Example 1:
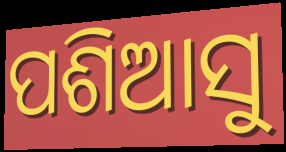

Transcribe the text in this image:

ପଶିଆସୁ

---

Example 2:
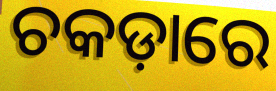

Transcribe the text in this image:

ଚକଡ଼ାରେ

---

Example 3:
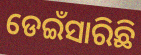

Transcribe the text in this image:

ଡେଇଁସାରିଛି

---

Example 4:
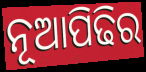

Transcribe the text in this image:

ନୂଆପିଢିର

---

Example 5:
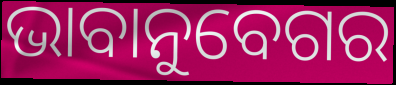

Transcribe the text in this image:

ଭାବାନୁବେଗର